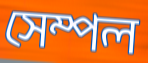
সেম্পল